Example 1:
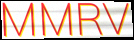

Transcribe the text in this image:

MMRV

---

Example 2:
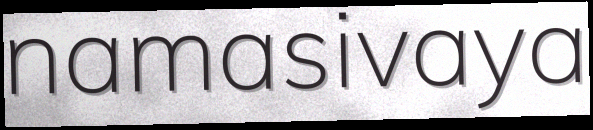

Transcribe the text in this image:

namasivaya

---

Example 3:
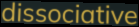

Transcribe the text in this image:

dissociative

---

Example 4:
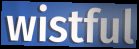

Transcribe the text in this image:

wistful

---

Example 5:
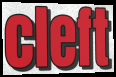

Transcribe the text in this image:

cleft